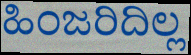
ಹಿಂಜರಿದಿಲ್ಲ